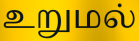
உறுமல்